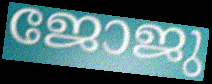
ജോജു